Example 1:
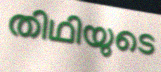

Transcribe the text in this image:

തിഥിയുടെ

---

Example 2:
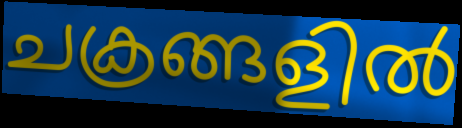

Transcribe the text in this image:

ചക്രങ്ങളിൽ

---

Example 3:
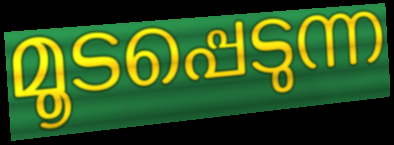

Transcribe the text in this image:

മൂടപ്പെടുന്ന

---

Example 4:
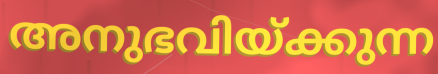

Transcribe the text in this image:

അനുഭവിയ്ക്കുന്ന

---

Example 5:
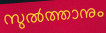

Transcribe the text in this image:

സുൽത്താനും